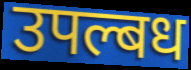
उपल्‍बध